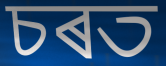
চৰত